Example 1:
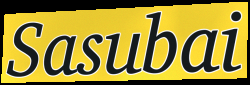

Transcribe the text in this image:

Sasubai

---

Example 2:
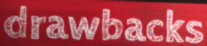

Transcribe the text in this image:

drawbacks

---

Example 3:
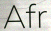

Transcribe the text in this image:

Afr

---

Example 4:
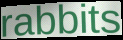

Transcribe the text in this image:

rabbits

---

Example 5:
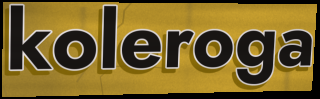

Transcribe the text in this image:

koleroga